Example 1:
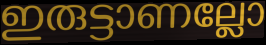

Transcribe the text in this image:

ഇരുട്ടാണല്ലോ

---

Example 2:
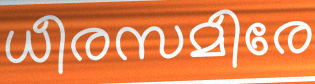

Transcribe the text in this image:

ധീരസമീരേ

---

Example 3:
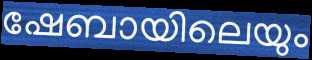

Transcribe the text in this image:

ഷേബായിലെയും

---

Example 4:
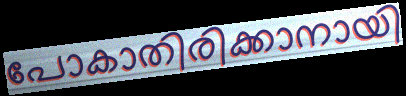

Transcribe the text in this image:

പോകാതിരിക്കാനായി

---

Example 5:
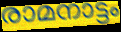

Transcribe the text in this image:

രാമനാട്ടം